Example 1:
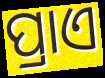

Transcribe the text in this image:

ପ୍ରାଏ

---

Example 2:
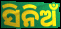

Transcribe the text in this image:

ସିନିଅଁ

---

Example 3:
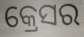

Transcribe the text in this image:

କ୍ରେସର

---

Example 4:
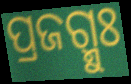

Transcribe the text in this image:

ପ୍ରଜଗ୍ମୁଃ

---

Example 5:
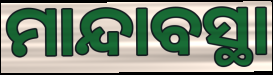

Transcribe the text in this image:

ମାନ୍ଦାବସ୍ଥା